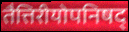
तैत्तिरीयोपनिषद्